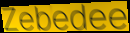
Zebedee